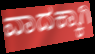
ವಾದಕ್ಕಾಗಿ